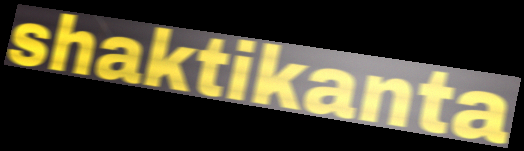
shaktikanta